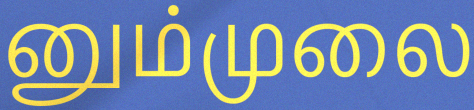
னும்முலை